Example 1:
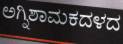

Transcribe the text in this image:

ಅಗ್ನಿಶಾಮಕದಳದ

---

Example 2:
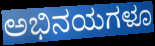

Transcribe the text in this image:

ಅಭಿನಯಗಳೂ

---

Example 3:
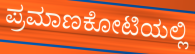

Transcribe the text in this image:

ಪ್ರಮಾಣಕೋಟಿಯಲ್ಲಿ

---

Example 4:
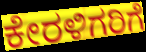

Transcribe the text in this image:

ಕೇರಳಿಗರಿಗೆ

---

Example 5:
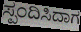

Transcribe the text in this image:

ಸ್ಪಂದಿಸಿದಾಗ